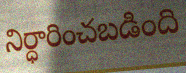
నిర్ధారించబడింది